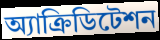
অ্যাক্রিডিটেশন